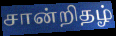
சான்றிதழ்